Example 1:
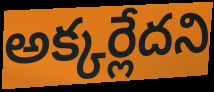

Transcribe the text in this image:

అక్కర్లేదని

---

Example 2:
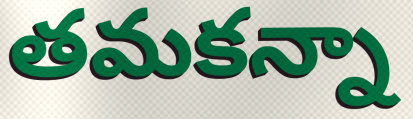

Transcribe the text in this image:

తమకన్నా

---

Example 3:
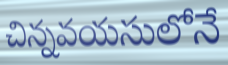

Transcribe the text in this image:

చిన్నవయసులోనే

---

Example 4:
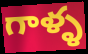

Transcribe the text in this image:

గాళ్ళ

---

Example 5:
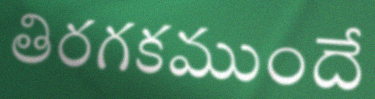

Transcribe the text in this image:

తిరగకముందే